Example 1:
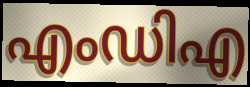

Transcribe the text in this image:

എംഡിഎ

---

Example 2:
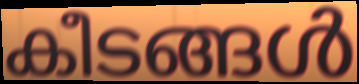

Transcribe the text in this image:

കീടങ്ങൾ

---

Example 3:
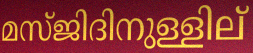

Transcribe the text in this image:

മസ്ജിദിനുള്ളില്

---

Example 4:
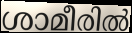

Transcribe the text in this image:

ശാമീരിൽ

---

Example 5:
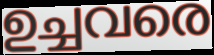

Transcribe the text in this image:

ഉച്ചവരെ